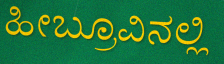
ಹೀಬ್ರೂವಿನಲ್ಲಿ